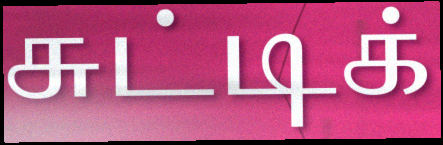
சுட்டிக்